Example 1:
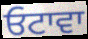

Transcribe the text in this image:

ਓਟਾਵਾ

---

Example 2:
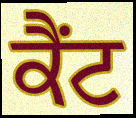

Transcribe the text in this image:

ਕੈਂਟ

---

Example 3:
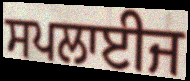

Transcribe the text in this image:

ਸਪਲਾਈਜ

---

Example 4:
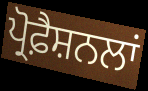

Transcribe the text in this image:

ਪ੍ਰੋਫ਼ੈਸ਼ਨਲਾਂ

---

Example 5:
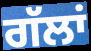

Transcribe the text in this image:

ਗੱਲਾਂ